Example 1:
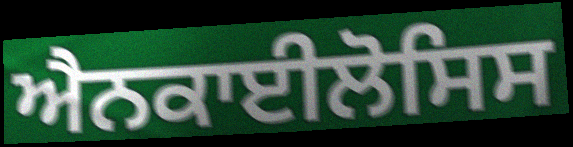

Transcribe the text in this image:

ਐਨਕਾਈਲੋਸਿਸ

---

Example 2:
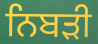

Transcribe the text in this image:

ਨਿਬੜੀ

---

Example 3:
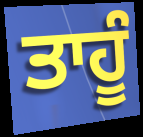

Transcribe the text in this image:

ਤਾਹੂੰ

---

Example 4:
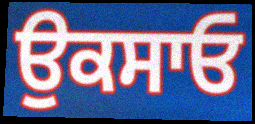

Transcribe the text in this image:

ਉਕਸਾਓ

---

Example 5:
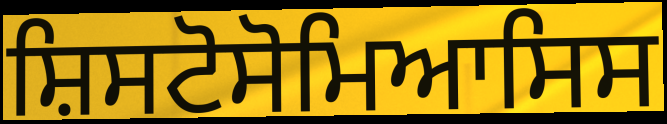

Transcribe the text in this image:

ਸ਼ਿਸਟੋਸੋਮਿਆਸਿਸ